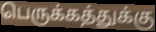
பெருக்கத்துக்கு